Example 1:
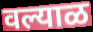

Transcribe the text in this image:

वल्याळ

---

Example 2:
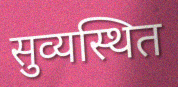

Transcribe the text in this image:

सुव्यस्थित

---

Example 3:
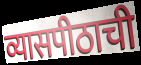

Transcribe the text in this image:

व्यासपीठाची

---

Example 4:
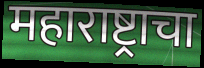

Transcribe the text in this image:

महाराष्ट्राचा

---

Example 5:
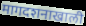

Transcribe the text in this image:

मागदशनाखाली